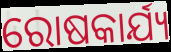
ରୋଷକାର୍ଯ୍ୟ